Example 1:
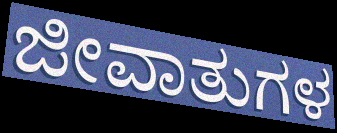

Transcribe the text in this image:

ಜೀವಾತುಗಳ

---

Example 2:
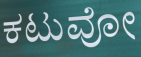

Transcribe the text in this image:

ಕಟುವೋ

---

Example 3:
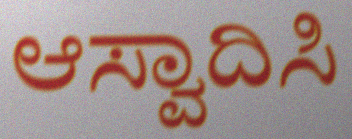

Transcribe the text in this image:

ಆಸ್ವಾದಿಸಿ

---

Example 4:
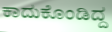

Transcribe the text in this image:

ಕಾದುಕೊಂಡಿದ್ದ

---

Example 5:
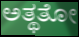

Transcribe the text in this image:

ಅತ್ಥತೋ